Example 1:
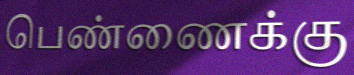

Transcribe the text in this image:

பெண்ணைக்கு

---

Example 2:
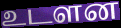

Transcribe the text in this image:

உடளன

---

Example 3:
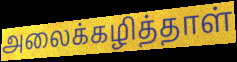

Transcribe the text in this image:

அலைக்கழித்தாள்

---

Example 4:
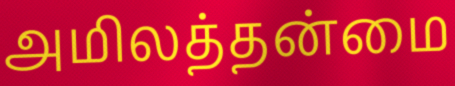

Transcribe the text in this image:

அமிலத்தன்மை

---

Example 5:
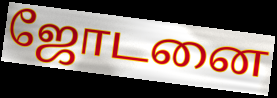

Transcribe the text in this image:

ஜோடனை